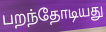
பறந்தோடியது